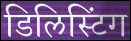
डिलिस्टिंग